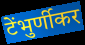
टेंभुर्णीकर